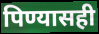
पिण्यासही